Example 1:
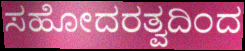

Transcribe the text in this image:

ಸಹೋದರತ್ವದಿಂದ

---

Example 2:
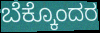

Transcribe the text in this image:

ಬೆಕ್ಕೊಂದರ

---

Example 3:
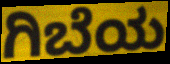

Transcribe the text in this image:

ಗಿಬೆಯ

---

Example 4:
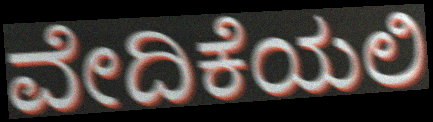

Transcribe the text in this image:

ವೇದಿಕೆಯಲಿ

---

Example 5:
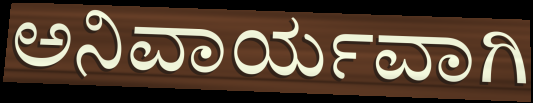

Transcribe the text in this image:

ಅನಿವಾರ್ಯವಾಗಿ